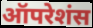
ऑपरेशंस